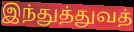
இந்துத்துவத்